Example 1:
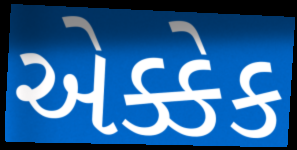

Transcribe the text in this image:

એક્કેક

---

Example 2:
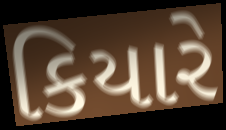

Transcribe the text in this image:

કિયારે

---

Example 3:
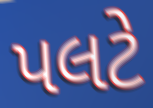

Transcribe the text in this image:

પલટે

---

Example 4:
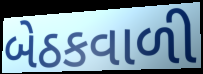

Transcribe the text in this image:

બેઠકવાળી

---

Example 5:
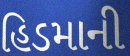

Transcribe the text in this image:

હિડમાની